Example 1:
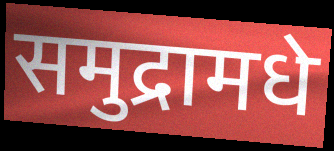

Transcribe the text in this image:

समुद्रामधे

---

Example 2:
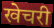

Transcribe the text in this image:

खेचरी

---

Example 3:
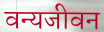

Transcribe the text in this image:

वन्यजीवन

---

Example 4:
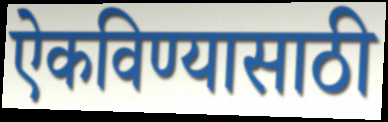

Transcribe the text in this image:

ऐकविण्यासाठी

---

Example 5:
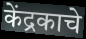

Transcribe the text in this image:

केंद्रकाचे